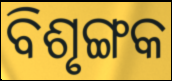
ବିଶୃଙ୍ଗକ